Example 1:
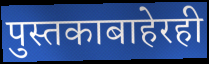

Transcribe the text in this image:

पुस्तकाबाहेरही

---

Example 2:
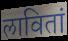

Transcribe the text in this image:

लावितां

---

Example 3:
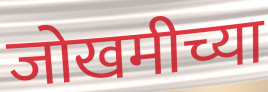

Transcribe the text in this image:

जोखमीच्या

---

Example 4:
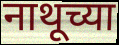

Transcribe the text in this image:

नाथूच्या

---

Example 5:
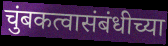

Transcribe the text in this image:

चुंबकत्वासंबंधीच्या